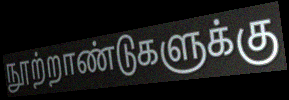
நூற்றாண்டுகளுக்கு